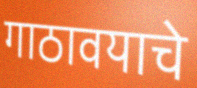
गाठावयाचे